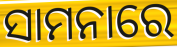
ସାମନାରେ